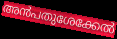
അൻപതുശേക്കേൽ